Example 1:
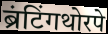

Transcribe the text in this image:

ब्रंटिंगथोरपे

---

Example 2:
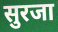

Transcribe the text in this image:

सुरजा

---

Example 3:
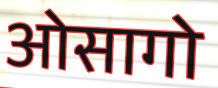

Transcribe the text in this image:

ओसागो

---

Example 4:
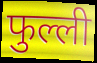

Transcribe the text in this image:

फुल्ली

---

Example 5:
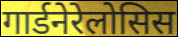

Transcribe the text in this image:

गार्डनेरेलोसिस